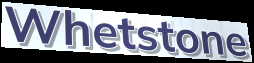
Whetstone